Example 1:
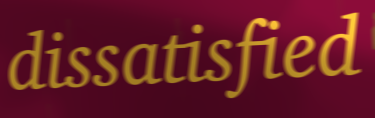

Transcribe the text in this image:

dissatisfied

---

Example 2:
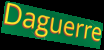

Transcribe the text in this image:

Daguerre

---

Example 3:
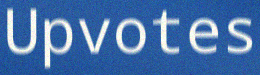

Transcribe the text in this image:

Upvotes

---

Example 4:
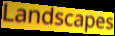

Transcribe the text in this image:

Landscapes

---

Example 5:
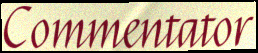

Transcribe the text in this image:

Commentator